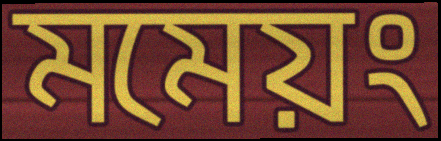
মমেয়ং